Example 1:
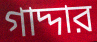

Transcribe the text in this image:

গাদ্দার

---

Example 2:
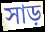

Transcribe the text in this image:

সাড়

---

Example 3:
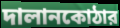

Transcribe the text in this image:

দালানকোঠার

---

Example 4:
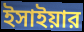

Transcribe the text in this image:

ইসাইয়ার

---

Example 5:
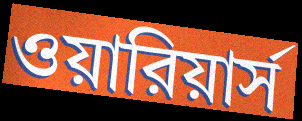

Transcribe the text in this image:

ওয়ারিয়ার্স